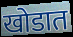
खोडात